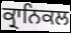
ਕ੍ਰਾਨਿਕਲ